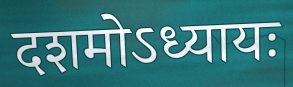
दशमोऽध्यायः